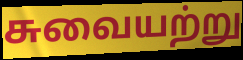
சுவையற்று